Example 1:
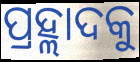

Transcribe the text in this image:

ପ୍ରହ୍ଲାଦକୁ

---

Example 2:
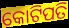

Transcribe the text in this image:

କୋଟିପତି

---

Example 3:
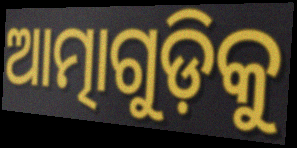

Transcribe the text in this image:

ଆତ୍ମାଗୁଡ଼ିକୁ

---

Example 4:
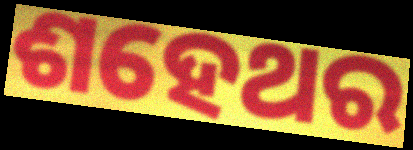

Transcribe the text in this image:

ଶହେଥର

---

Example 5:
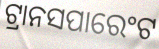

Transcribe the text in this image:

ଟ୍ରାନସପାରେଂଟ